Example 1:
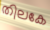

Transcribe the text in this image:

തിലകേ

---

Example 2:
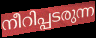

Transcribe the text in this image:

നീറിപ്പടരുന്ന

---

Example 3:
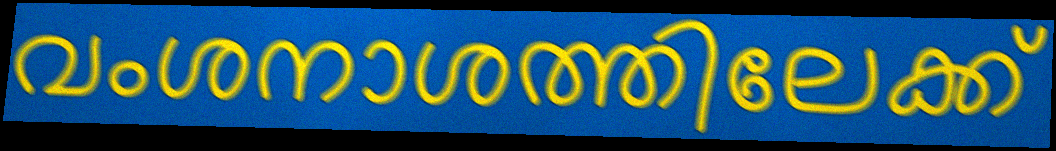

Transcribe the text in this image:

വംശനാശത്തിലേക്ക്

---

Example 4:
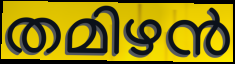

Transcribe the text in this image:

തമിഴൻ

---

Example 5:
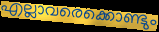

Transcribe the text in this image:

എല്ലാവരെക്കൊണ്ടും